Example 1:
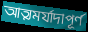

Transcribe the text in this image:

আত্মমর্যাদাপূর্ণ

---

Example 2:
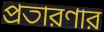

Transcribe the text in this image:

প্রতারণার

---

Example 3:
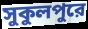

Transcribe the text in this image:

সুকুলপুরে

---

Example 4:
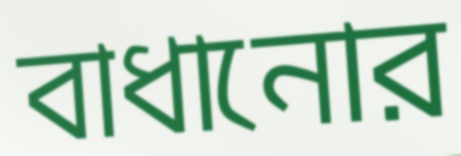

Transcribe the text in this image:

বাধানোর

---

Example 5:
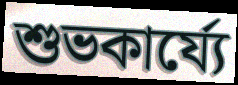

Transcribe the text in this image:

শুভকার্য্যে